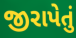
જીરાપેતું